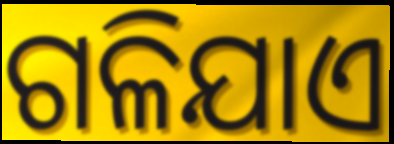
ଗଳିଯାଏ